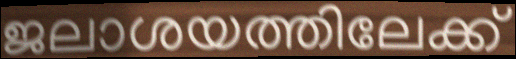
ജലാശയത്തിലേക്ക്